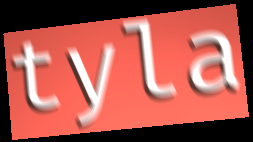
tyla